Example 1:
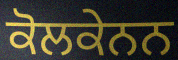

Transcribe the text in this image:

ਕੋਲਕੇਨਨ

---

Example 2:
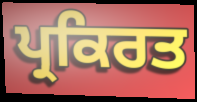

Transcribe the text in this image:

ਪ੍ਰਕਿਰਤ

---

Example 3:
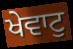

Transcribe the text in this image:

ਖੇਵਾਟੁ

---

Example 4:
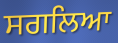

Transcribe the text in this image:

ਸਗਲਿਆ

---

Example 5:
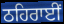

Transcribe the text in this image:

ਠਹਿਰਾਈਂ